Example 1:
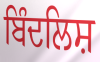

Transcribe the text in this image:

ਬਿੰਦਲਿਸ਼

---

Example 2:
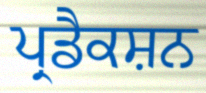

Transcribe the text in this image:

ਪ੍ਰਡੈਕਸ਼ਨ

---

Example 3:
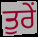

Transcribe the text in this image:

ਤੁਰੇਂ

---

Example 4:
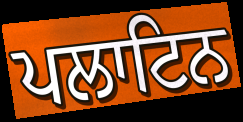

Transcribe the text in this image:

ਪਲਾਟਿਨ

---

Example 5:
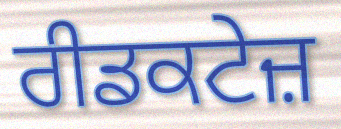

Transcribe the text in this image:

ਰੀਡਕਟੇਜ਼